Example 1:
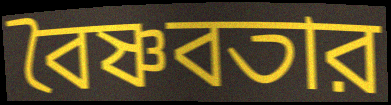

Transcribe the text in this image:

বৈষ্ণবতার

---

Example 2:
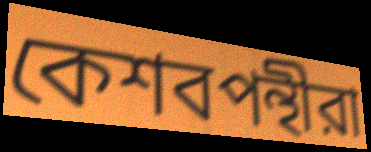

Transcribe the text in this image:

কেশবপন্থীরা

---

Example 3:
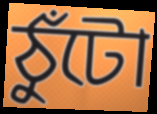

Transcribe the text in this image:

ঠুঁটো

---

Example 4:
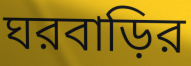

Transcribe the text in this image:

ঘরবাড়ির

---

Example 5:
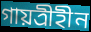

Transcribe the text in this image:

গায়ত্রীহীন